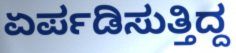
ಏರ್ಪಡಿಸುತ್ತಿದ್ದ